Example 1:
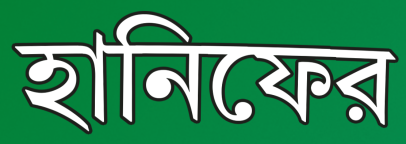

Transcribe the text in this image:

হানিফের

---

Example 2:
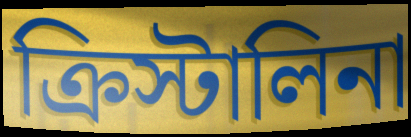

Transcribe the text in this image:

ক্রিস্টালিনা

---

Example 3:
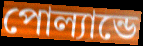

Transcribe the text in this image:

পোল্যান্ডে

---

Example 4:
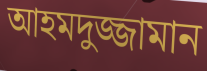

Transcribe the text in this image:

আহমদুজ্জামান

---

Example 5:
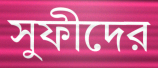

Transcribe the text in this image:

সুফীদের